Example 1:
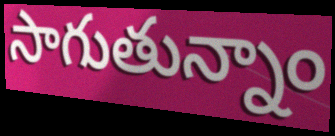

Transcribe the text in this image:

సాగుతున్నాం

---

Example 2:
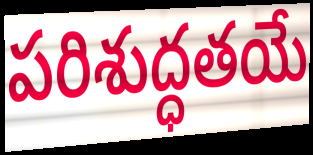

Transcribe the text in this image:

పరిశుద్ధతయే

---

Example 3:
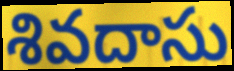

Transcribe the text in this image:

శివదాసు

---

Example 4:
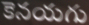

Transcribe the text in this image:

కెనయగు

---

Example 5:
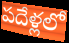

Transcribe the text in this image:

పదేళ్లలో